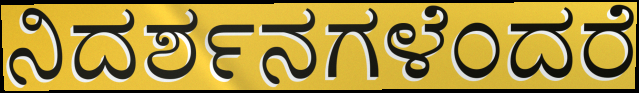
ನಿದರ್ಶನಗಳೆಂದರೆ